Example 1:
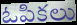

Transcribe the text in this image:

ఓపికలు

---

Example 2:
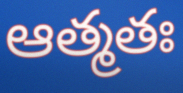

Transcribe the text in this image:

ఆత్మతః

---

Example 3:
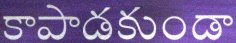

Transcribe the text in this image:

కాపాడకుండా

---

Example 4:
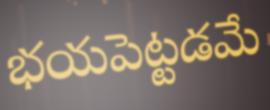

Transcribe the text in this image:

భయపెట్టడమే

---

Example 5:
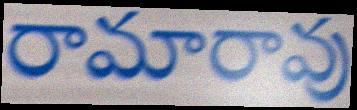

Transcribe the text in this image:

రామారావు